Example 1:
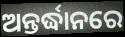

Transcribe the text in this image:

ଅନ୍ତର୍ଦ୍ଧାନରେ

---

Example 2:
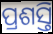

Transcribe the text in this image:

ପ୍ରଶସ୍ତି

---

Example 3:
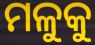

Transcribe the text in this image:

ମଳୁକୁ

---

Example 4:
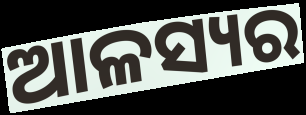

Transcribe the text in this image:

ଆଳସ୍ୟର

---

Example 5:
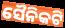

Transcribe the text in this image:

ସୈନିକଟି